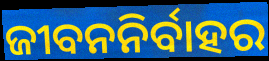
ଜୀବନନିର୍ବାହର